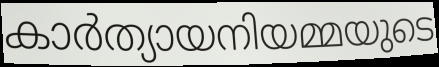
കാർത്യായനിയമ്മയുടെ